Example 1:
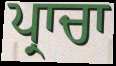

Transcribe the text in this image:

ਪ੍ਰਾਚਾ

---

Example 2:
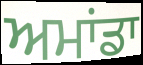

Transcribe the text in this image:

ਅਮਾਂਡਾ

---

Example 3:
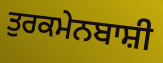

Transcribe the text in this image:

ਤੁਰਕਮੇਨਬਾਸ਼ੀ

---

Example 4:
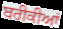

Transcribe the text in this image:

ਬਰੀਕੀਆਂ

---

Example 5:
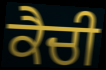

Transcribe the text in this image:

ਕੈਚੀ